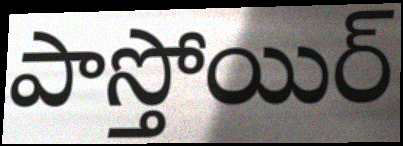
పాస్తోయిర్